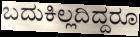
ಬದುಕಿಲ್ಲದಿದ್ದರೂ